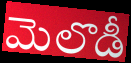
మెలొడీ